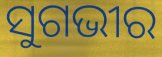
ସୁଗଭୀର